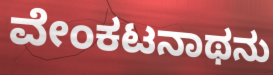
ವೇಂಕಟನಾಥನು